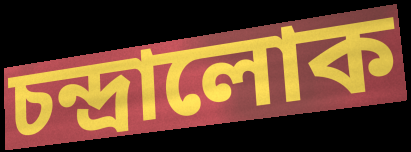
চন্দ্ৰালোক